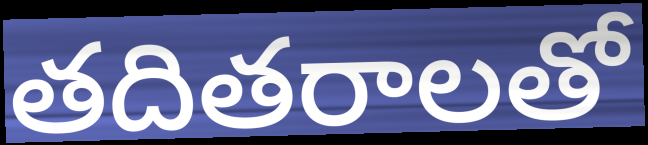
తదితరాలతో